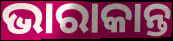
ଭାରାକାନ୍ତ